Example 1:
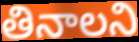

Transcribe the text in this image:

తినాలని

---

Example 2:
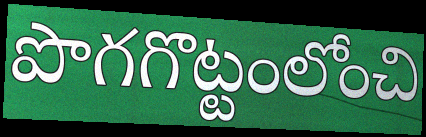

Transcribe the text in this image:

పొగగొట్టంలోంచి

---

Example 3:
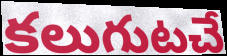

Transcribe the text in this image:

కలుగుటచే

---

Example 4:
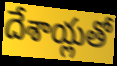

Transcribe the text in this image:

దేశాయ్లతో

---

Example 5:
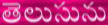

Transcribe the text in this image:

తెలుసును